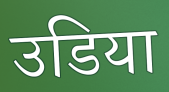
उडिया